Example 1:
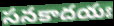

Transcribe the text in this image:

సనకాదయః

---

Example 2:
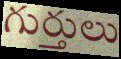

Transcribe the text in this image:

గుర్తులు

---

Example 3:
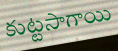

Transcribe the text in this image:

కుట్టసాగాయి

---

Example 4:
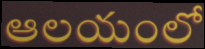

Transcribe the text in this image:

ఆలయంలో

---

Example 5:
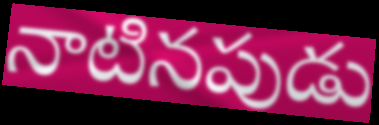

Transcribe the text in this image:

నాటినపుడు